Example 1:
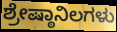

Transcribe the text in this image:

ಶ್ರೇಷ್ಠಾನಿಲಗಳು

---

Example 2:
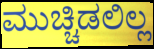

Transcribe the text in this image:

ಮುಚ್ಚಿಡಲಿಲ್ಲ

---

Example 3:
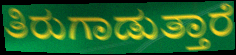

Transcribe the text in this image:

ತಿರುಗಾಡುತ್ತಾರೆ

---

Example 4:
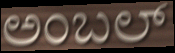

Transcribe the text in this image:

ಅಂಬಲ್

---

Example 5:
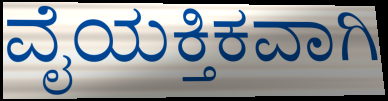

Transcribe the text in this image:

ವೈಯಕ್ತಿಕವಾಗಿ